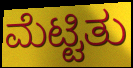
ಮೆಟ್ಟಿತು